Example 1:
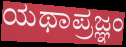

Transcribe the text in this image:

ಯಥಾಪ್ರಜ್ಞಂ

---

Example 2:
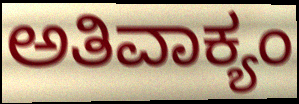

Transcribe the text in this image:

ಅತಿವಾಕ್ಯಂ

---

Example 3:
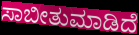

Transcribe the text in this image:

ಸಾಬೀತುಮಾಡಿದೆ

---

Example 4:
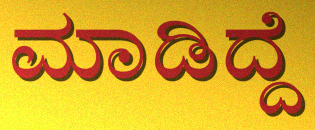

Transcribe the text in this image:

ಮಾಡಿದ್ದೆ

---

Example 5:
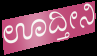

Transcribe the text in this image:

ಊದ್ತೀನಿ